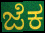
ಜೆಕ